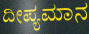
ದೀಪ್ಯಮಾನ